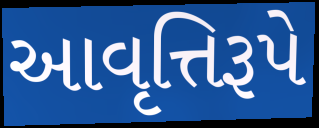
આવૃત્તિરૂપે